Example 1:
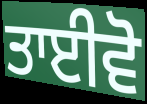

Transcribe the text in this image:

ਤਾਈਵੋ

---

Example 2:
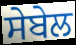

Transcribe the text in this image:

ਸੇਬੇਲ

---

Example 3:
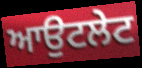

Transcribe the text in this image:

ਆਉਟਲੇਟ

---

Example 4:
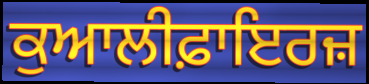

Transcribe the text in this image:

ਕੁਆਲੀਫ਼ਾਇਰਜ਼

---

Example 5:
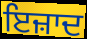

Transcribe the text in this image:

ਇਜ਼ਾਦ